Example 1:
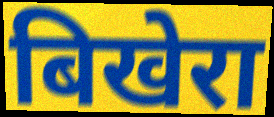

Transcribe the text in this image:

बिखेरा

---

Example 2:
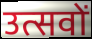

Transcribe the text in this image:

उत्सवों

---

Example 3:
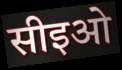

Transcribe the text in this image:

सीइओ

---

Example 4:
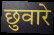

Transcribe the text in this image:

छुवारे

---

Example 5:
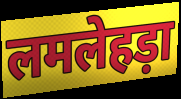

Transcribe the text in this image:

लमलेहड़ा